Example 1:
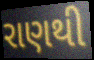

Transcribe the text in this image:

રાણથી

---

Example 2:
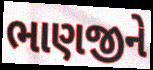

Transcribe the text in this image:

ભાણજીને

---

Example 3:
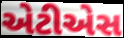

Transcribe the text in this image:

એટીએસ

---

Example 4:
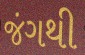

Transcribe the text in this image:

જંગથી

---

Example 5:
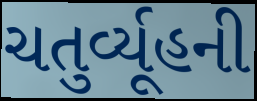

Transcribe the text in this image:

ચતુર્વ્યૂહની